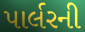
પાર્લરની